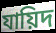
যায়িদ